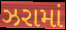
ઝરામાં